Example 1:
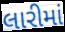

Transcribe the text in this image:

લારીમાં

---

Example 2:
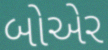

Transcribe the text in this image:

બોએર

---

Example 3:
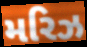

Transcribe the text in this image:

મરિઝ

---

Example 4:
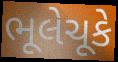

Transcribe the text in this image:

ભૂલેચૂકે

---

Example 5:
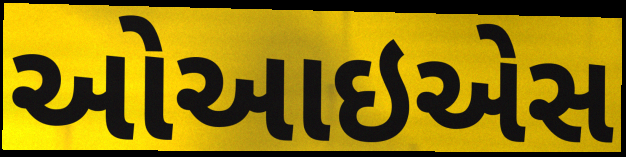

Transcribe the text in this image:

ઓઆઇએસ